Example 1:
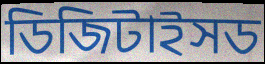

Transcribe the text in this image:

ডিজিটাইসড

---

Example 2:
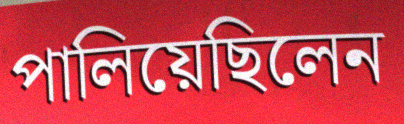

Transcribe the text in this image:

পালিয়েছিলেন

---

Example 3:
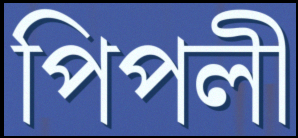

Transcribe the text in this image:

পিপলী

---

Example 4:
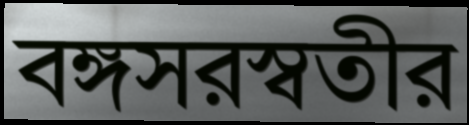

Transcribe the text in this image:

বঙ্গসরস্বতীর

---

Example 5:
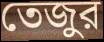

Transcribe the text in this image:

তেজুর